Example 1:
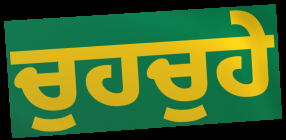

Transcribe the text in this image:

ਚੁਹਚੁਹੇ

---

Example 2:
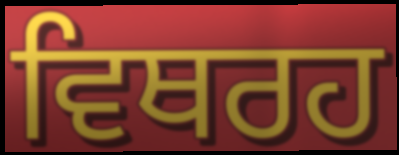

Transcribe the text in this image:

ਵਿਥਰਹ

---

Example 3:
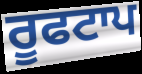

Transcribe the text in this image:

ਰੂਫਟਾਪ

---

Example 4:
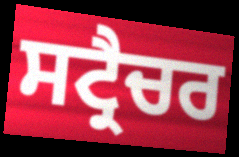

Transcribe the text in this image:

ਸਟ੍ਰੈਚਰ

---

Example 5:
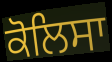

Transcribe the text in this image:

ਕੋਲਿਸਾ